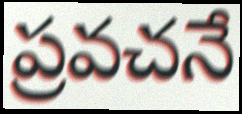
ప్రవచనే